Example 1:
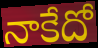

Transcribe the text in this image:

నాకేదో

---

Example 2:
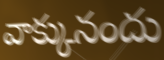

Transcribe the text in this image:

వాక్కునందు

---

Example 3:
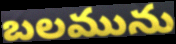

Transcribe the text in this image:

బలమును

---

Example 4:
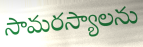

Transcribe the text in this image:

సామరస్యాలను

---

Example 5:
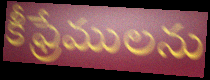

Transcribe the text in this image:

కీఫ్రేములను